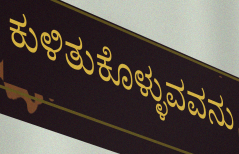
ಕುಳಿತುಕೊಳ್ಳುವವನು